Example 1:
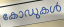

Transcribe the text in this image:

കോഡുകൾ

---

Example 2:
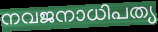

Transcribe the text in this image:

നവജനാധിപത്യ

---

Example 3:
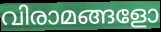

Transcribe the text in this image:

വിരാമങ്ങളോ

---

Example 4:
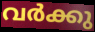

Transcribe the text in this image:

വർക്കു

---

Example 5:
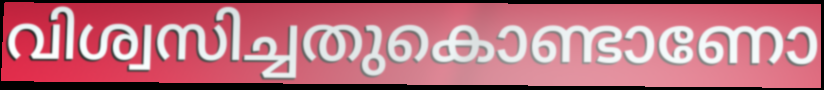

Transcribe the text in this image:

വിശ്വസിച്ചതുകൊണ്ടാണോ